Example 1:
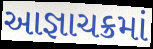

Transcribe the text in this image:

આજ્ઞાચક્રમાં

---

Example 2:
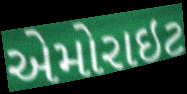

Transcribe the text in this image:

એમોરાઇટ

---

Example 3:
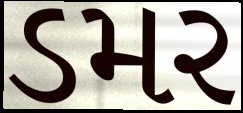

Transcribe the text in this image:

ડમર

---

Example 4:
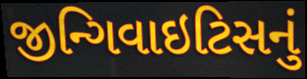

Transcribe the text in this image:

જીન્ગિવાઇટિસનું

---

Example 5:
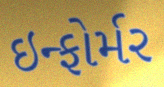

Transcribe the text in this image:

ઇન્ફોર્મર